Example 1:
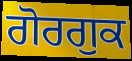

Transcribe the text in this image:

ਗੋਰਗੁਕ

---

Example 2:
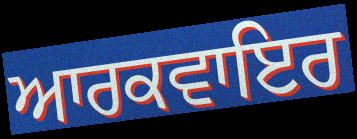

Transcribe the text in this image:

ਆਰਕਵਾਇਰ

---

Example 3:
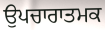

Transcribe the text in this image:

ਉਪਚਾਰਾਤਮਕ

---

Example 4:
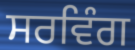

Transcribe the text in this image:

ਸਰਵਿੰਗ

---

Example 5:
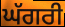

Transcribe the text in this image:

ਘੱਗਰੀ